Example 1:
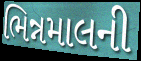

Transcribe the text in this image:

ભિન્નમાલની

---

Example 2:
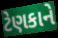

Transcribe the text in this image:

ટેણકાને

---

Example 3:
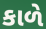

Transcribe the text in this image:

કાળે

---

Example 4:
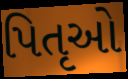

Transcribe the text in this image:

પિતૃઓ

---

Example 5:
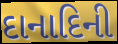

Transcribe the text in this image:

દાનાદિની